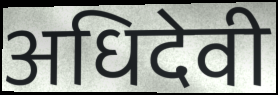
अधिदेवी